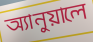
অ্যানুয়ালে